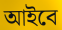
আইবে